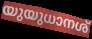
യുയുധാനശ്